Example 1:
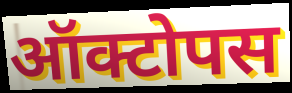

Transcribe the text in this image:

ऑक्टोपस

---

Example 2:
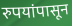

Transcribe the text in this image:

रुपयांपासून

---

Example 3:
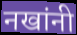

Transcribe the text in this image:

नखांनी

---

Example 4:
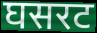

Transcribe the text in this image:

घसरट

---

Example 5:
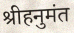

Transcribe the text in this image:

श्रीहनुमंत